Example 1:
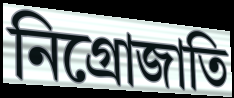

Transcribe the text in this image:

নিগ্রোজাতি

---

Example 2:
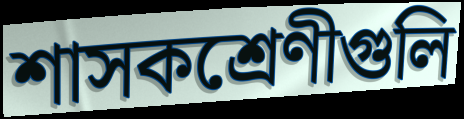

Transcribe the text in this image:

শাসকশ্রেণীগুলি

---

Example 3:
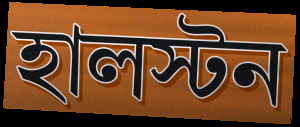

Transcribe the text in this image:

হালস্টন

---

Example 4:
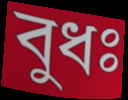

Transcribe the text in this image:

বুধঃ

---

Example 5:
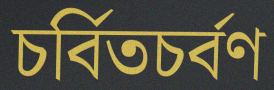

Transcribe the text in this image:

চর্বিতচর্বণ